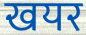
खयर